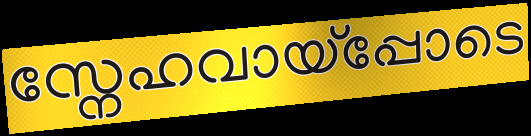
സ്നേഹവായ്പ്പോടെ